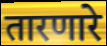
तारणारे